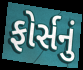
ફોર્સનું